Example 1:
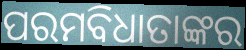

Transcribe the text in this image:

ପରମବିଧାତାଙ୍କର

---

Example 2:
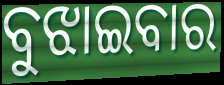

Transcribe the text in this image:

ବୁଝାଇବାର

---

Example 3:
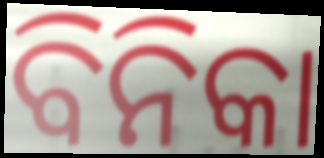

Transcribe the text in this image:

ବିନିକା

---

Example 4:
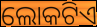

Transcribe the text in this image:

ଲୋକଟିଏ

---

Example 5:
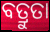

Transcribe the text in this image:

ବତ୍ରୁତା